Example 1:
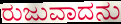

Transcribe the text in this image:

ರುಜುವಾದನು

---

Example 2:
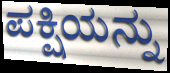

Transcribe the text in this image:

ಪಕ್ಷಿಯನ್ನು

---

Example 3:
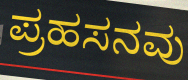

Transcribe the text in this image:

ಪ್ರಹಸನವು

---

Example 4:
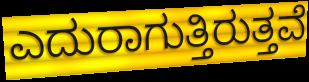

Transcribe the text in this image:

ಎದುರಾಗುತ್ತಿರುತ್ತವೆ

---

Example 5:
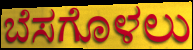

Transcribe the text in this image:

ಬೆಸಗೊಳಲು